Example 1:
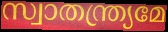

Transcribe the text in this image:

സ്വാതന്ത്ര്യമേ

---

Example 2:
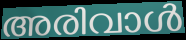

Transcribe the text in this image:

അരിവാൾ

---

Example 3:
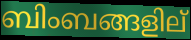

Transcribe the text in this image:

ബിംബങ്ങളില്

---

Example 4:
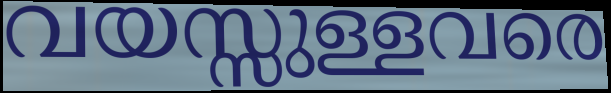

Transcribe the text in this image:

വയസ്സുള്ളവരെ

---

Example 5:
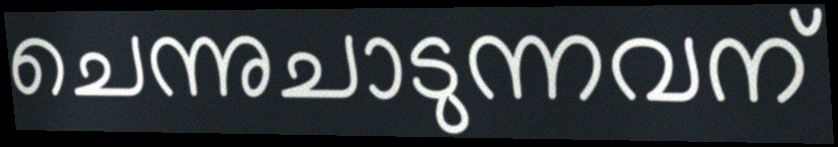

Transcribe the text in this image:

ചെന്നുചാടുന്നവന്